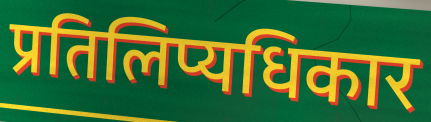
प्रतिलिप्यधिकार